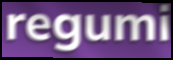
regumi